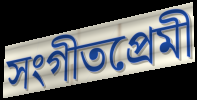
সংগীতপ্রেমী